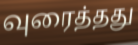
வுரைத்தது